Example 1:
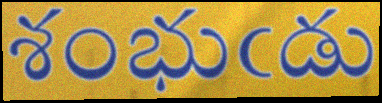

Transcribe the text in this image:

శంభుఁడు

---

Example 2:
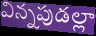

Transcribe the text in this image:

విన్నపుడల్లా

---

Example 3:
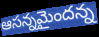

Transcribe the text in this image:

ఆసన్నమైందన్న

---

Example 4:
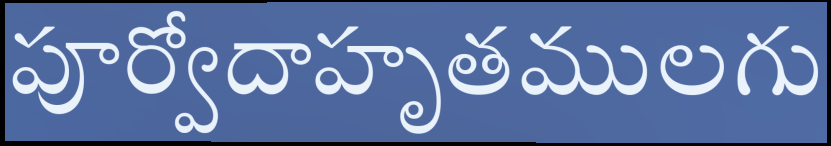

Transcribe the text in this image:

పూర్వోదాహృతములగు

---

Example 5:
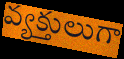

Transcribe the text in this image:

వ్యక్తులుగా